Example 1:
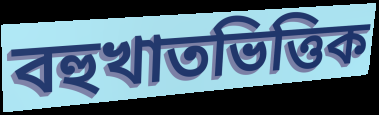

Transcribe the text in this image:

বহুখাতভিত্তিক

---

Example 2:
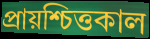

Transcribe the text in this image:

প্রায়শ্চিত্তকাল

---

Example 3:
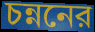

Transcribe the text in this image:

চন্ননের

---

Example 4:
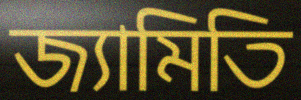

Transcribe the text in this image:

জ্যামিতি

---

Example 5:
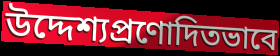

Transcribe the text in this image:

উদ্দেশ্যপ্রণোদিতভাবে